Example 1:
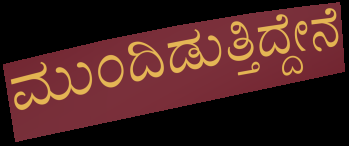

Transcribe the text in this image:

ಮುಂದಿಡುತ್ತಿದ್ದೇನೆ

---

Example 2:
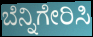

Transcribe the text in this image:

ಬೆನ್ನಿಗೇರಿಸಿ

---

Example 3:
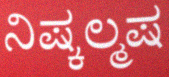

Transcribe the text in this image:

ನಿಷ್ಕಲ್ಮಷ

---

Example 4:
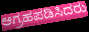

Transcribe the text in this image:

ಆಗ್ರಹಪಡಿಸಿದರು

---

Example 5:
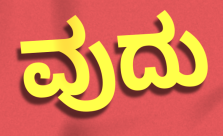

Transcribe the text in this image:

ವುದು